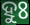
ହୁଃ